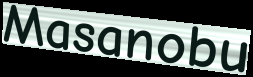
Masanobu